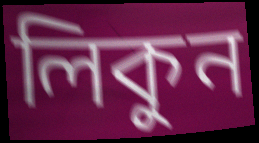
লিকুন